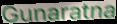
Gunaratna